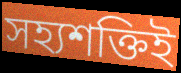
সহ্যশক্তিই